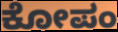
ಕೋಪಂ